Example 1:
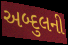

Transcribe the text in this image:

અબ્દુલની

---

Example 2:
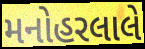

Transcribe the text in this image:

મનોહરલાલે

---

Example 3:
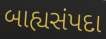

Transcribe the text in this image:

બાહ્યસંપદા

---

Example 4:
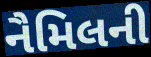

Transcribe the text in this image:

નૈમિલની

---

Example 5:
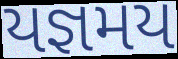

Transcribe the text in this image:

યજ્ઞમય